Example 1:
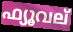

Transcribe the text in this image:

ഫ്യൂവല്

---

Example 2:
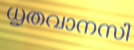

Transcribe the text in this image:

ധൃതവാനസി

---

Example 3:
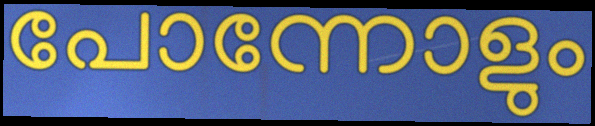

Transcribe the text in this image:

പോന്നോളും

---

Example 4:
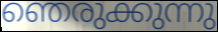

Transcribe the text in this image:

ഞെരുക്കുന്നു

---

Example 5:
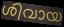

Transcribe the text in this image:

ശിവായ